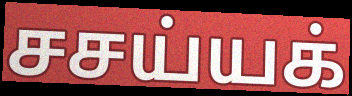
சசய்யக்